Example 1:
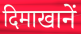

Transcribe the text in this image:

दिमाखानें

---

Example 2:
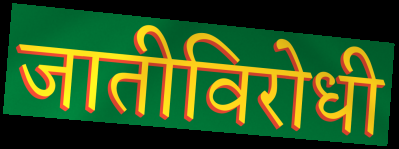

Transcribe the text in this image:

जातीविरोधी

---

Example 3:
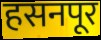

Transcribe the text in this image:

हसनपूर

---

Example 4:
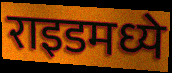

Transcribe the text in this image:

राइडमध्ये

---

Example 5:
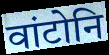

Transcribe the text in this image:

वांटोनि